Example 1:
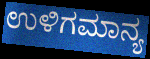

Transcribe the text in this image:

ಉಳಿಗಮಾನ್ಯ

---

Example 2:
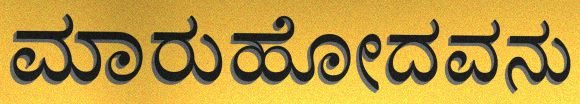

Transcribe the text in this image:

ಮಾರುಹೋದವನು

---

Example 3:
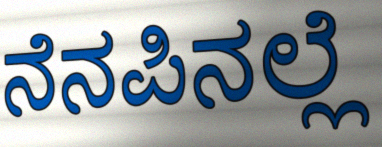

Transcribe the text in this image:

ನೆನಪಿನಲ್ಲೆ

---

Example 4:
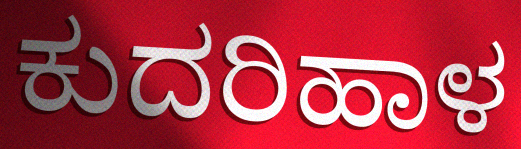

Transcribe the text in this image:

ಕುದರಿಹಾಳ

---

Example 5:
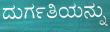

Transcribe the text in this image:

ದುರ್ಗತಿಯನ್ನು